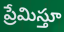
ప్రేమిస్తూ